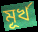
মূৰ্খ